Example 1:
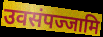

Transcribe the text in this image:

उवसंपज्जामि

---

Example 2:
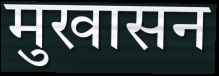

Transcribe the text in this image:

मुखासन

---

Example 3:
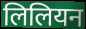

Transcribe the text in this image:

लिलियन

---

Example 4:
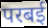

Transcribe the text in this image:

परबई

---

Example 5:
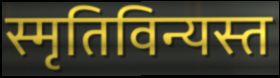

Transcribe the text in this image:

स्मृतिविन्यस्त